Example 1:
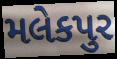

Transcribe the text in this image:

મલેકપુર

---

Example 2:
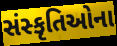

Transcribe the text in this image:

સંસ્કૃતિઓના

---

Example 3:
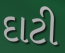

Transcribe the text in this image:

દાટી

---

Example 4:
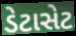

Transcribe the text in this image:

ડેટાસેટ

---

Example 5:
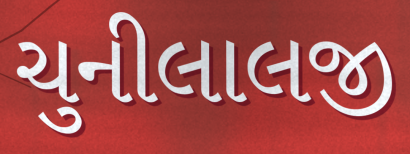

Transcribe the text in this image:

ચુનીલાલજી